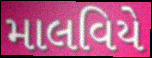
માલવિયે